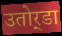
उतोर्डा